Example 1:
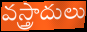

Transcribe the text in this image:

వస్త్రాదులు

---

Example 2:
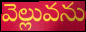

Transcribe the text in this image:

వెల్లువను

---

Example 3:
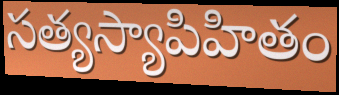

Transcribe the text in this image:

సత్యస్యాపిహితం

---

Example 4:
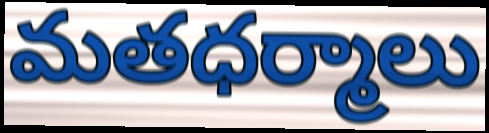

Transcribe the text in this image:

మతధర్మాలు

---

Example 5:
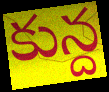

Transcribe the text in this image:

కున్ద